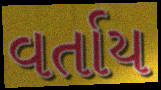
વર્તાય